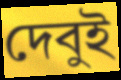
দেবুই